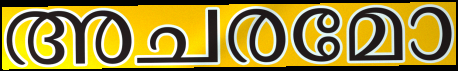
അചരമോ